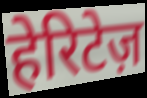
हेरिटेज़